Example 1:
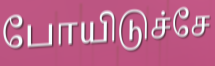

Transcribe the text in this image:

போயிடுச்சே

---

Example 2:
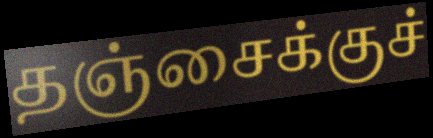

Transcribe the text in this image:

தஞ்சைக்குச்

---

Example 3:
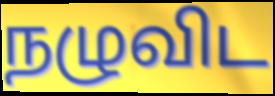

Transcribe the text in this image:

நழுவிட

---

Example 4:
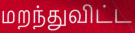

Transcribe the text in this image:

மறந்துவிட்ட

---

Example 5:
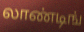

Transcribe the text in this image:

லாண்டிங்